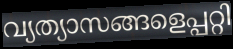
വ്യത്യാസങ്ങളെപ്പറ്റി